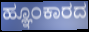
ಹ್ಞೂಂಕಾರದ